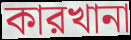
কারখানা